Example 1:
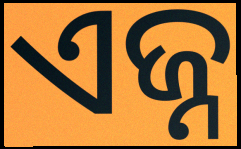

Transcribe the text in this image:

ଏଜ୍ନ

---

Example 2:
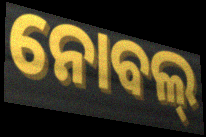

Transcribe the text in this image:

ନୋବଲ୍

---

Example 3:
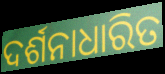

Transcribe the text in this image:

ଦର୍ଶନାଧାରିତ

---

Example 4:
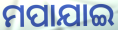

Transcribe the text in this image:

ମପାଯାଇ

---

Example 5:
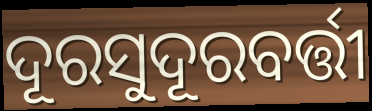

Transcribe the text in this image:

ଦୂରସୁଦୂରବର୍ତ୍ତୀ